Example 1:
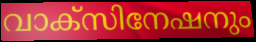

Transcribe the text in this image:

വാക്സിനേഷനും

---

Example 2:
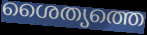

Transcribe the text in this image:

ശൈത്യത്തെ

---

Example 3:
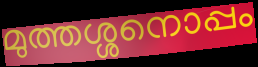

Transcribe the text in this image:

മുത്തശ്ശനൊപ്പം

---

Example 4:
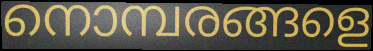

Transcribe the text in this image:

നൊമ്പരങ്ങളെ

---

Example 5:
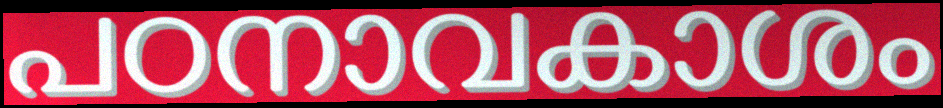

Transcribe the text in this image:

പഠനാവകാശം